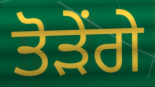
ਤੋੜੇਂਗੇ